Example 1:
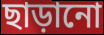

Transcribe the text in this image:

ছাড়ানো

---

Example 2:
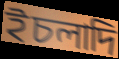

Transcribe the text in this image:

ইচলাদি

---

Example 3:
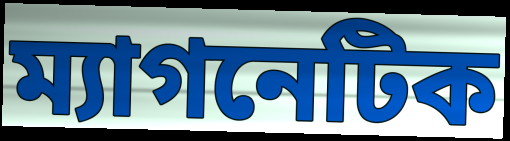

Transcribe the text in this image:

ম্যাগনেটিক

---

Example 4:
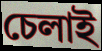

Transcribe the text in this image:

চেলাই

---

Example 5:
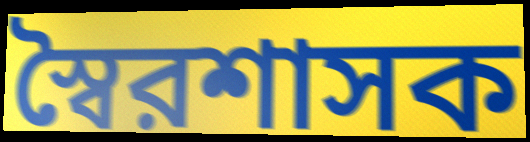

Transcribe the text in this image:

স্বৈরশাসক